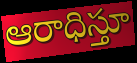
ఆరాధిస్తూ